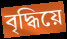
বৃদ্ধিয়ে